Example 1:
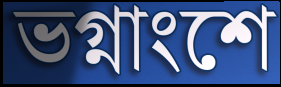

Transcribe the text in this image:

ভগ্নাংশে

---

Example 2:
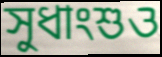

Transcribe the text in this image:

সুধাংশুও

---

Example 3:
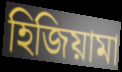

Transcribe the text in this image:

হিজিয়ামা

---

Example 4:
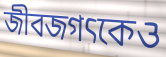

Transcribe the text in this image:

জীবজগৎকেও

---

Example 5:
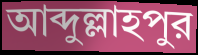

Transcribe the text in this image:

আব্দুল্লাহপুর